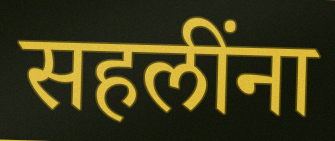
सहलींना